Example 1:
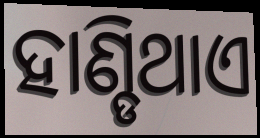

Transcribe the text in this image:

ହାଣ୍ଡିଥାଏ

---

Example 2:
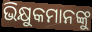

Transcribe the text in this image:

ଭିକ୍ଷୁକମାନଙ୍କୁ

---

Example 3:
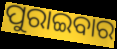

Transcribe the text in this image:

ପୁରାଇବାର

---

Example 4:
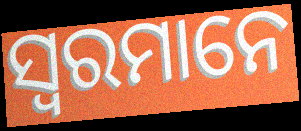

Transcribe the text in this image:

ସ୍ୱରମାନେ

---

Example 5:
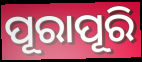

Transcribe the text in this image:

ପୂରାପୂରି